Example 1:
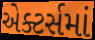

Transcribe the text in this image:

એક્ટર્સમાં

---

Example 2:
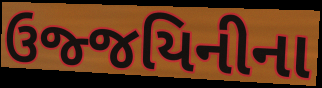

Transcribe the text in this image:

ઉજ્જયિનીના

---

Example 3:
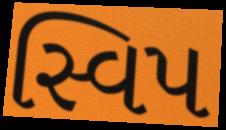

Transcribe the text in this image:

સ્વિપ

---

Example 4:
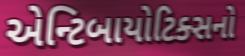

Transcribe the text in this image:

એન્ટિબાયોટિક્સનો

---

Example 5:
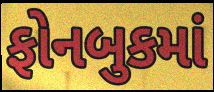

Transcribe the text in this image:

ફોનબુકમાં